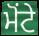
ਮੋਂਟੇ